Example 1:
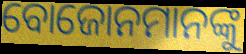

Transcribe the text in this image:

ବୋଜୋନମାନଙ୍କୁ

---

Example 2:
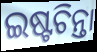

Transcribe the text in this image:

ଇଷ୍ଟଚିନ୍ତା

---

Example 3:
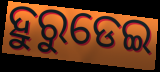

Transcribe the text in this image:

ହୁରୁଡେଇ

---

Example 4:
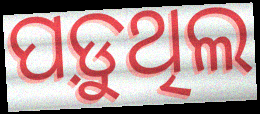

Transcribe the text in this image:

ପଡ଼ୁଥିଲ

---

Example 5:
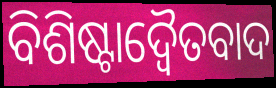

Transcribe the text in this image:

ବିଶିଷ୍ଟାଦ୍ଵୈତବାଦ